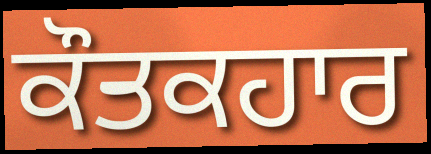
ਕੌਤਕਹਾਰ